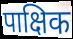
पाक्षिक